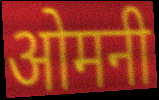
ओमनी